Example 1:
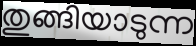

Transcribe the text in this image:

തുങ്ങിയാടുന്ന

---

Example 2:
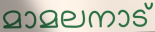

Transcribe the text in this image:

മാമലനാട്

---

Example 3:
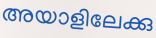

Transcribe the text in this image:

അയാളിലേക്കു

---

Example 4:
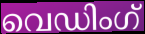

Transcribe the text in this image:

വെഡിംഗ്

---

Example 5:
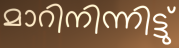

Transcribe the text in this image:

മാറിനിന്നിട്ടു്